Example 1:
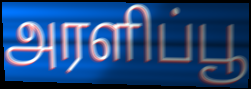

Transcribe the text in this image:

அரளிப்பூ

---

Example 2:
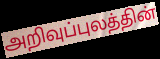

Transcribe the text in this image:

அறிவுப்புலத்தின்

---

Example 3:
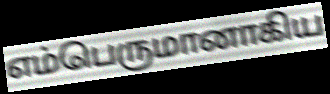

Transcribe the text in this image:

எம்பெருமானாகிய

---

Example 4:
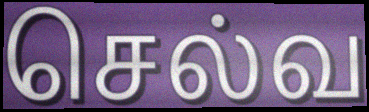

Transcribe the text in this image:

செல்வ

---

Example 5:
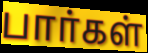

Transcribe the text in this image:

பார்கள்